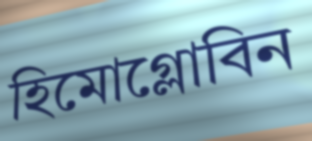
হিমোগ্লোবিন